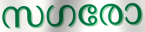
സഗരോ